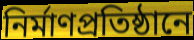
নির্মাণপ্রতিষ্ঠানে